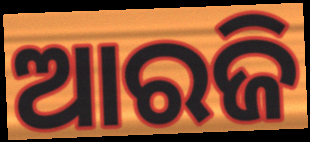
ଆରଜି